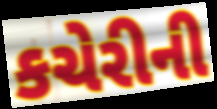
કચેરીની